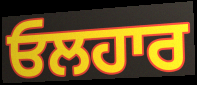
ਓਲਹਾਰ